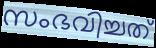
സംഭവിച്ചത്